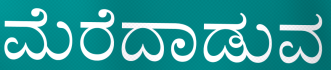
ಮೆರೆದಾಡುವ